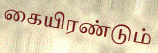
கையிரண்டும்